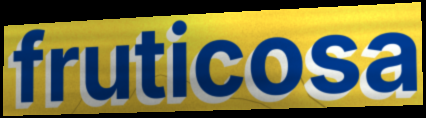
fruticosa